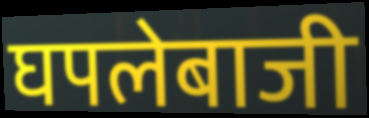
घपलेबाजी